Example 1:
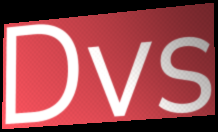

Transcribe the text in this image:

Dvs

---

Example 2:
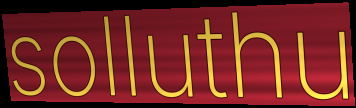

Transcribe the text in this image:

solluthu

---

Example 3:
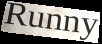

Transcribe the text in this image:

Runny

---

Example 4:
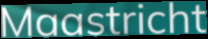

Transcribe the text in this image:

Maastricht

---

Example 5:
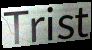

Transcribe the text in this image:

Trist